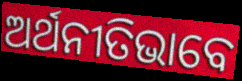
ଅର୍ଥନୀତିଭାବେ